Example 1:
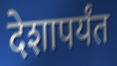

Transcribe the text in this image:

देशापर्यंत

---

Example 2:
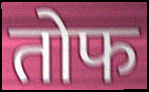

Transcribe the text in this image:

तोफ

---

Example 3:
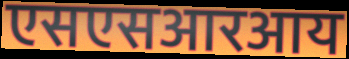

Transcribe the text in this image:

एसएसआरआय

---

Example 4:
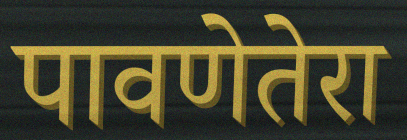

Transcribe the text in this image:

पावणेतेरा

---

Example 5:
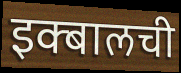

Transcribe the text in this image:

इक्बालची